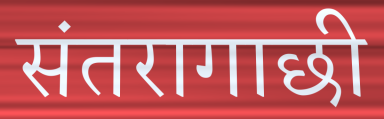
संतरागाछी